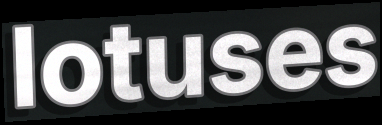
lotuses